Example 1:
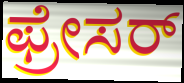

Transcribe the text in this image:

ಫ್ರೇಸರ್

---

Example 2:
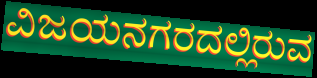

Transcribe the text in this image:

ವಿಜಯನಗರದಲ್ಲಿರುವ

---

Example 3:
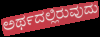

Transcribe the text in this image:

ಅರ್ಥದಲ್ಲಿರುವುದು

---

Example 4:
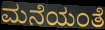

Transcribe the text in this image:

ಮನೆಯಂತೆ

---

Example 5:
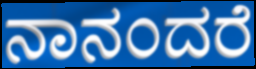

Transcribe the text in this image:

ನಾನಂದರೆ